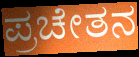
ಪ್ರಚೇತನ